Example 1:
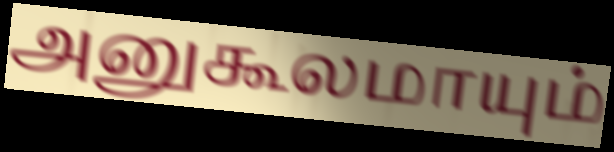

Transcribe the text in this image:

அனுகூலமாயும்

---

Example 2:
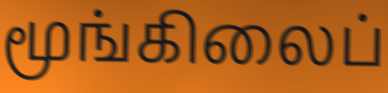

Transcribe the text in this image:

மூங்கிலைப்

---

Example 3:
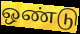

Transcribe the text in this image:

ஒண்டு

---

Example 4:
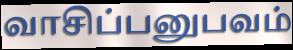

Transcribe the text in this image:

வாசிப்பனுபவம்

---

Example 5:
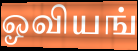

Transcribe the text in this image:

ஓவியங்